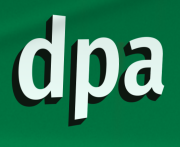
dpa